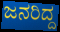
ಜನರಿದ್ದ